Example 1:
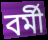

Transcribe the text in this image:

বর্মী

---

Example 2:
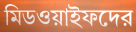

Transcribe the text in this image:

মিডওয়াইফদের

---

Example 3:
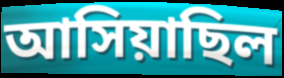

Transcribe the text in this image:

আসিয়াছিল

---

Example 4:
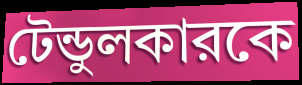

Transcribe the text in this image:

টেন্ডুলকারকে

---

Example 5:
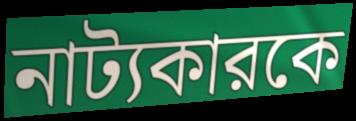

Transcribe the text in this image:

নাট্যকারকে